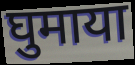
घुमाया